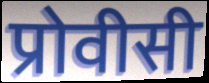
प्रोवीसी